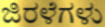
ಜಿರಳೆಗಳು